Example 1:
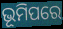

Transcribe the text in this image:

ଭୂମିପରେ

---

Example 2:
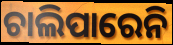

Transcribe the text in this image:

ଚାଲିପାରେନି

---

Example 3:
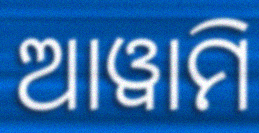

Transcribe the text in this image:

ଆୱାମି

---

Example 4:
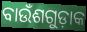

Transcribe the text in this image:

ବାଉଁଶଗୁଡ଼ାକ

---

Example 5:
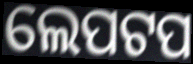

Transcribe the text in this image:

ଲେପଟପ